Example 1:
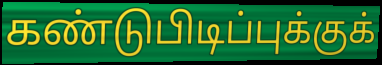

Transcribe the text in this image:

கண்டுபிடிப்புக்குக்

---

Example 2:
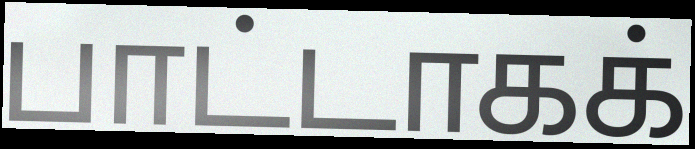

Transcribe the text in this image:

பாட்டாகக்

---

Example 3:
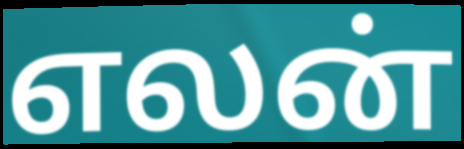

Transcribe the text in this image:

எலன்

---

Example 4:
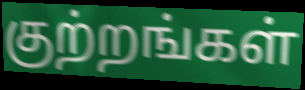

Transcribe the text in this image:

குற்றங்கள்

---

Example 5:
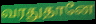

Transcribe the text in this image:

வரதுதானே